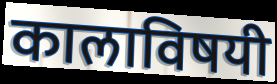
कालाविषयी